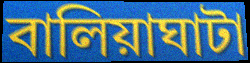
বালিয়াঘাটা